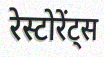
रेस्टोरेंट्स